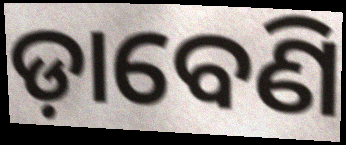
ଡ଼ାବେଣି